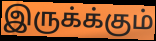
இருக்க்கும்